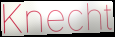
Knecht